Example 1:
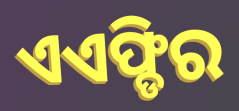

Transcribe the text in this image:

ଏଏଫ୍ଡିର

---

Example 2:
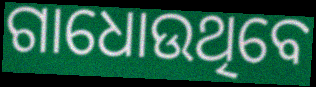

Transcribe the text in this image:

ଗାଧୋଉଥିବେ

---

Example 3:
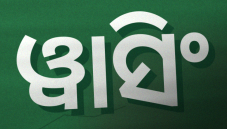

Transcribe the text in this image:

ୱାସିଂ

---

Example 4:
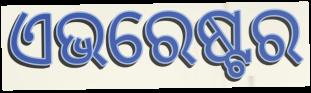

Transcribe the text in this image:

ଏଭରେଷ୍ଟର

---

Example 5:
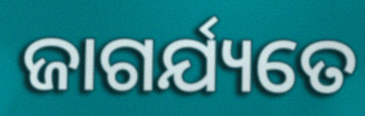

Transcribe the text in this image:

ଜାଗର୍ଯ୍ୟତେ